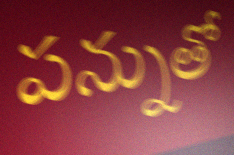
పన్నుతో